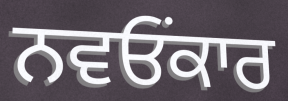
ਨਵਓਂਕਾਰ